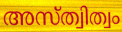
അസ്ത്വിത്വം